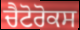
ਚੈਟੋਰੋਕਸ